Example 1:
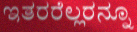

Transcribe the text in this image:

ಇತರರೆಲ್ಲರನ್ನೂ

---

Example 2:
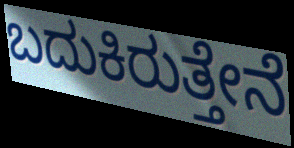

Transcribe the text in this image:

ಬದುಕಿರುತ್ತೇನೆ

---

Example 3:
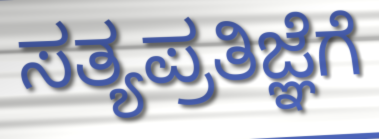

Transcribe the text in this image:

ಸತ್ಯಪ್ರತಿಜ್ಞೆಗೆ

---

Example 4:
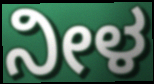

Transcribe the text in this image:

ನೀಳ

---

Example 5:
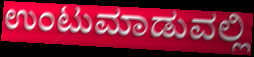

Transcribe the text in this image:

ಉಂಟುಮಾಡುವಲ್ಲಿ